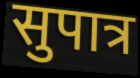
सुपात्र